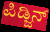
ಪಿಡ್ಜಿನ್